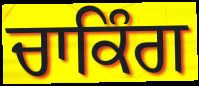
ਚਾਕਿੰਗ